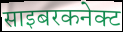
साइबरकनेक्ट